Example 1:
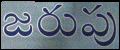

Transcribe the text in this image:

జరుపు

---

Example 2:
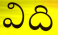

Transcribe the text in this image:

విది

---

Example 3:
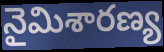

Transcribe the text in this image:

నైమిశారణ్య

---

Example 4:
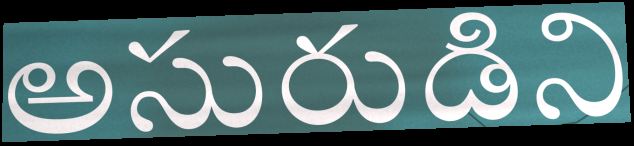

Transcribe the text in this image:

అసురుడిని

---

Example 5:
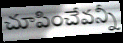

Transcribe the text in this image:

చూపించేవన్నీ